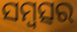
ସମ୍ବତ୍ସର